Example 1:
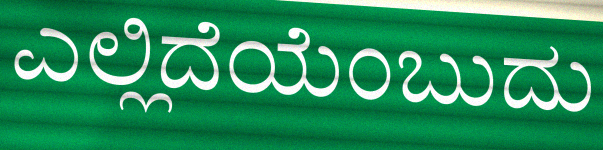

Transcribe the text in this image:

ಎಲ್ಲಿದೆಯೆಂಬುದು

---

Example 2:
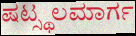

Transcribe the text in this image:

ಷಟ್ಸ್ಥಲಮಾರ್ಗ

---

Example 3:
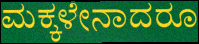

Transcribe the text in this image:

ಮಕ್ಕಳೇನಾದರೂ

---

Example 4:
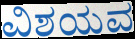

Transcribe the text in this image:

ವಿಶಯವ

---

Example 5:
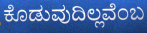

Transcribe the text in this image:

ಕೊಡುವುದಿಲ್ಲವೆಂಬ